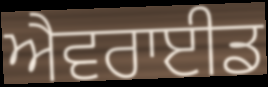
ਐਵਰਾਈਡ